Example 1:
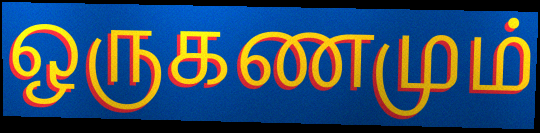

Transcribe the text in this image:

ஒருகணமும்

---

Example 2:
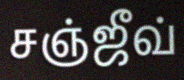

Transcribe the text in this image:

சஞ்ஜீவ்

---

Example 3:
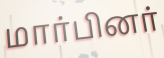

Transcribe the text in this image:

மார்பினர்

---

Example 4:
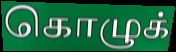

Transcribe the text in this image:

கொழுக்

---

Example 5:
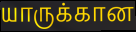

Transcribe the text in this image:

யாருக்கான